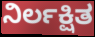
ನಿರ್ಲಕ್ಷಿತ